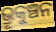
ଭ୍ରୂକୁଞ୍ଚନ